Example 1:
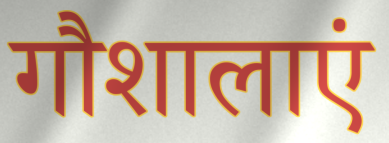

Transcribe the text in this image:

गौशालाएं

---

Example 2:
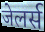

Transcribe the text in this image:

जेलर्स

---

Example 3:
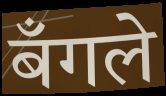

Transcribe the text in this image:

बँगले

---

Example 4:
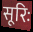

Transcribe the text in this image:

सूरिः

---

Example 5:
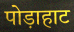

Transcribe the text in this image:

पोड़ाहाट